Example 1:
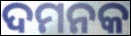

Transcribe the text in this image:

ଦମନକ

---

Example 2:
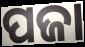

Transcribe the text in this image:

ପଜା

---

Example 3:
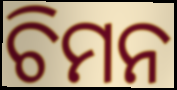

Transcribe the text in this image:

ଚିମନ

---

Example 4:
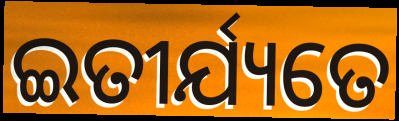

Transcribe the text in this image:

ଇତୀର୍ଯ୍ୟତେ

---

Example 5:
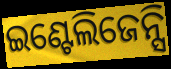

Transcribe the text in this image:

ଇଣ୍ଟେଲିଜେନ୍ସି